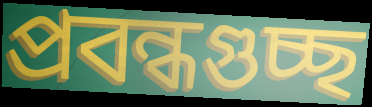
প্রবন্ধগুচ্ছ